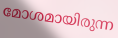
മോശമായിരുന്ന